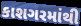
કાશગરમાંથી